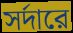
সর্দারে